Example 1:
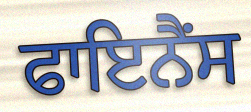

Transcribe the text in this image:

ਫਾਇਨੈਂਸ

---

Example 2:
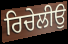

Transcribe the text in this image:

ਰਿਚੇਲੀਉ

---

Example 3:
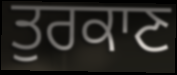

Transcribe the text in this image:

ਤੁਰਕਾਣ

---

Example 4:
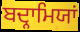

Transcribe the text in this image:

ਬਦ੍ਨਾਮਿਯਾਂ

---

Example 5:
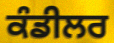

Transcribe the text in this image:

ਕੰਡੀਲਰ